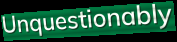
Unquestionably